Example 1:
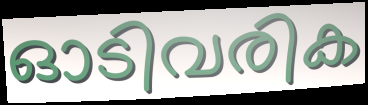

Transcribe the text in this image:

ഓടിവരിക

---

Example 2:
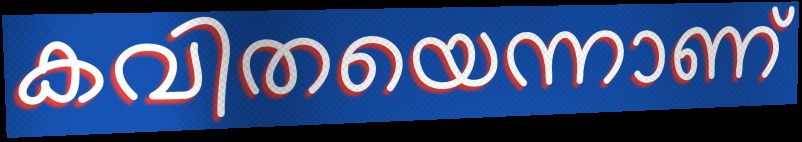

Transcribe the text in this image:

കവിതയെന്നാണ്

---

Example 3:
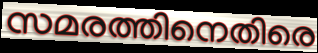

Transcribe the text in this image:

സമരത്തിനെതിരെ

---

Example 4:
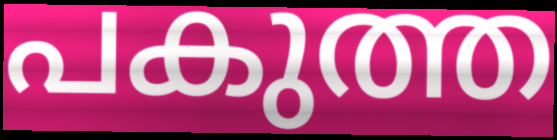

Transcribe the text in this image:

പകുത്ത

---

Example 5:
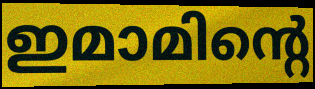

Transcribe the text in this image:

ഇമാമിന്റെ